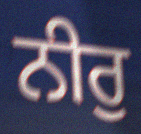
ਨੀਰੁ